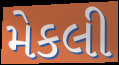
મેકલી